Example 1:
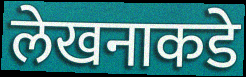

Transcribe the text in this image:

लेखनाकडे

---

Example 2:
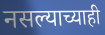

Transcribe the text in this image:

नसल्याच्याही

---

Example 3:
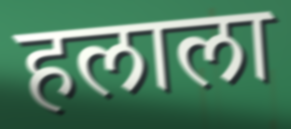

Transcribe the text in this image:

हलाला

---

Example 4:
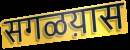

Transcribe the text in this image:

सगळय़ास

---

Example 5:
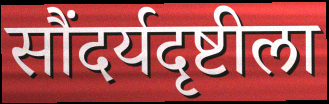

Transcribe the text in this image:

सौंदर्यदृष्टीला